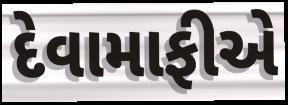
દેવામાફીએ